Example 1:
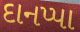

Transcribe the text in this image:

દાનપ્પા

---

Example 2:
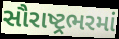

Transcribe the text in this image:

સૌરાષ્ટ્રભરમાં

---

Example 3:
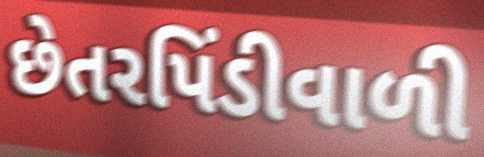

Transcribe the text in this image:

છેતરપિંડીવાળી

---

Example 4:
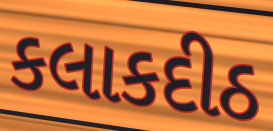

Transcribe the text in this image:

કલાકદીઠ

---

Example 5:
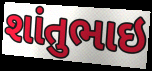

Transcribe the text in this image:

શાંતુભાઇ